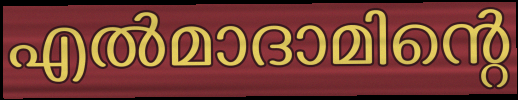
എൽമാദാമിന്റെ